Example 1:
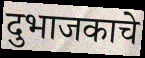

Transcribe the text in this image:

दुभाजकाचे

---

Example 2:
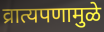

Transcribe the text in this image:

व्रात्यपणामुळे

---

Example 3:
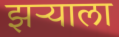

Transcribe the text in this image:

झर्‍याला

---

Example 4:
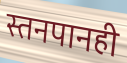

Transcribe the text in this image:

स्तनपानही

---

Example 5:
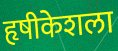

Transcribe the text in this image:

हृषीकेशला